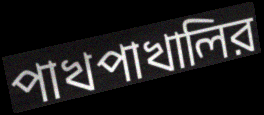
পাখপাখালির